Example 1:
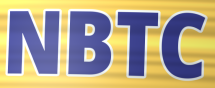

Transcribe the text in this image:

NBTC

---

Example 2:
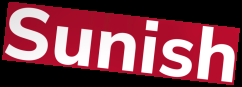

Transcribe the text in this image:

Sunish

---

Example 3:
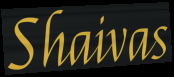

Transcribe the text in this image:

Shaivas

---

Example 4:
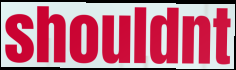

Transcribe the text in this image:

shouldnt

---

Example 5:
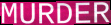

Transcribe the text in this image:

MURDER